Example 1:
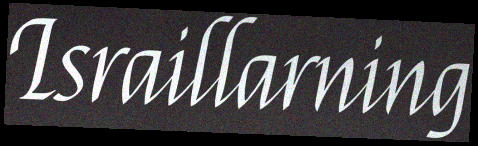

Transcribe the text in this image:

Israillarning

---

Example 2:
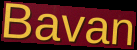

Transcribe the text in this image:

Bavan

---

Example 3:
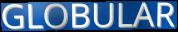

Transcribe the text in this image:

GLOBULAR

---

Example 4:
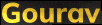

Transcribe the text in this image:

Gourav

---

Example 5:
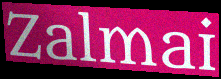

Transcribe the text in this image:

Zalmai